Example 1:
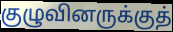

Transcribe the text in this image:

குழுவினருக்குத்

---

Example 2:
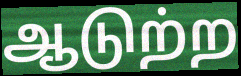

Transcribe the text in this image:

ஆடுற்ற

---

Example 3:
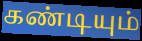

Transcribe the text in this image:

கண்டியும்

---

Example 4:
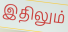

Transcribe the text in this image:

இதிலும்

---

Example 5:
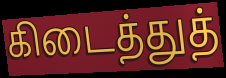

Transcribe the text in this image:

கிடைத்துத்